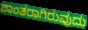
ಶಾಂತರಾಗಿರುವುದು